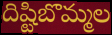
దిష్టిబొమ్మల